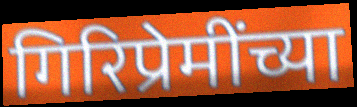
गिरिप्रेमींच्या